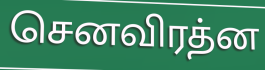
செனவிரத்ன